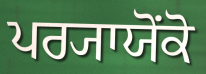
ਪਰ੍ਯਾਯੋਂਕੋ